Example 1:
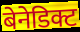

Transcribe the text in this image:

बेनेडिक्ट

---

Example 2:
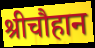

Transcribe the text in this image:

श्रीचौहान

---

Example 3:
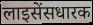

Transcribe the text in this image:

लाइसेंसधारक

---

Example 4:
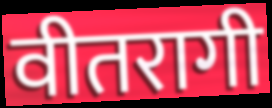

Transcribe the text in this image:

वीतरागी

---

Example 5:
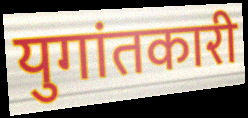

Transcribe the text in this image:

युगांतकारी